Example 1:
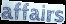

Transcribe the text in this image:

affairs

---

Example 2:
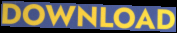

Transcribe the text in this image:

DOWNLOAD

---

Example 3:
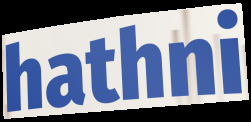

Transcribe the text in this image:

hathni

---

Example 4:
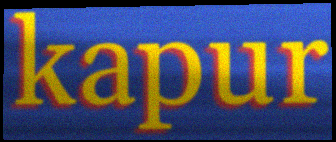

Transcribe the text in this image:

kapur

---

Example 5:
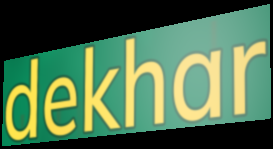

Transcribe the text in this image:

dekhar